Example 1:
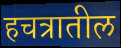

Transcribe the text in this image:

हचत्रातील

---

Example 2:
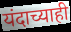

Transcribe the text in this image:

यंदाच्याही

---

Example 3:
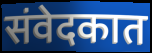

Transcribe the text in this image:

संवेदकात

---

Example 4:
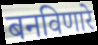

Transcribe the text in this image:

बनविणारे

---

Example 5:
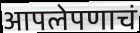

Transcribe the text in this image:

आपलेपणाचं